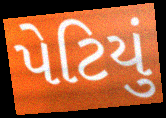
પેટિયું